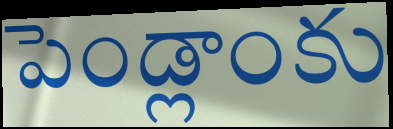
పెండ్లాంకు